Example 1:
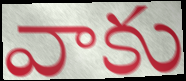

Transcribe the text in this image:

వాకు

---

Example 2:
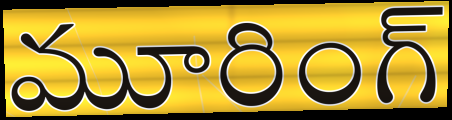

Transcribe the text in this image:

మూరింగ్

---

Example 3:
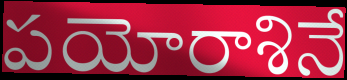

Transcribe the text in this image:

పయోరాశినే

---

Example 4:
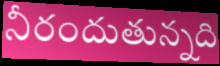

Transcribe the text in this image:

నీరందుతున్నది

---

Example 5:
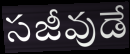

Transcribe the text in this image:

సజీవుడే